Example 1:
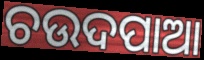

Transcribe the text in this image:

ଚଉଦପାଆ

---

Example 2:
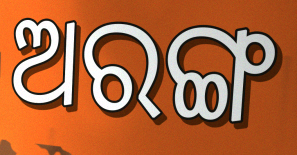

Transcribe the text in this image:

ଅରଙ୍ଗ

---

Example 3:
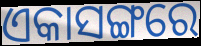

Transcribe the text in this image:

ଏକାସଙ୍ଗରେ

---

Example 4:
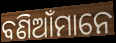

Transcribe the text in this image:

ବଣିଆଁମାନେ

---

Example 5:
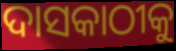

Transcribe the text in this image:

ଦାସକାଠୀକୁ